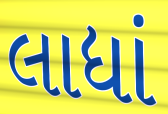
લાદ્યાં